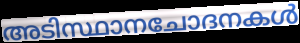
അടിസ്ഥാനചോദനകൾ